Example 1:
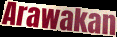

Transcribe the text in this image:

Arawakan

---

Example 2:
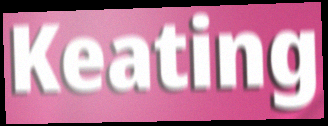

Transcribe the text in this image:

Keating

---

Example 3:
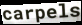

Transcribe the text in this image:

carpels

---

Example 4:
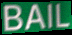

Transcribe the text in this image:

BAIL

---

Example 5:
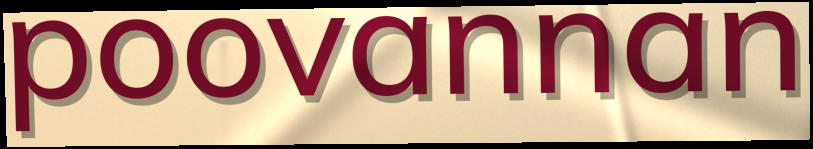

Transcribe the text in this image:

poovannan